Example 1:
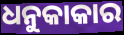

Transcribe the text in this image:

ଧନୁକାକାର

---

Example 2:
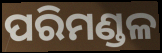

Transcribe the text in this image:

ପରିମଣ୍ଡଳ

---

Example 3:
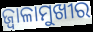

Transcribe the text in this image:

ଜ୍ୱାଳାମୁଖୀର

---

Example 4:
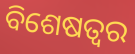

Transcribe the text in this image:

ବିଶେଷତ୍ବର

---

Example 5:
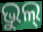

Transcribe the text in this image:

ଭୁଲ୍